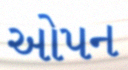
ઓપન